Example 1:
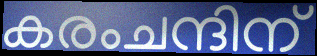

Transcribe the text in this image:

കരംചന്ദിന്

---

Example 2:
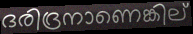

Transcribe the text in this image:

ദരിദ്രനാണെങ്കില്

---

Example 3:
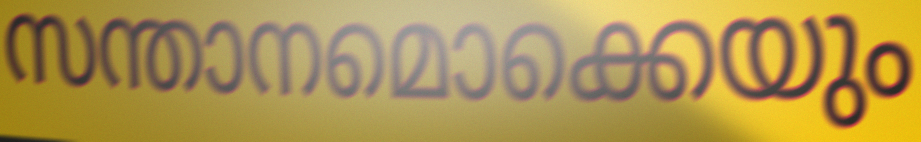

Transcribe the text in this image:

സന്താനമൊക്കെയും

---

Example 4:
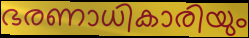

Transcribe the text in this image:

ഭരണാധികാരിയും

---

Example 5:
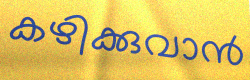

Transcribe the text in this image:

കഴിക്കുവാൻ